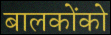
बालकोंको